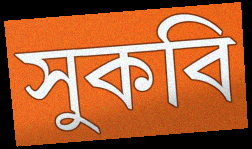
সুকবি